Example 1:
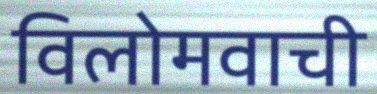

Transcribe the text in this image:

विलोमवाची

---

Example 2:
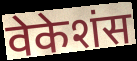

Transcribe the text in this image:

वेकेशंस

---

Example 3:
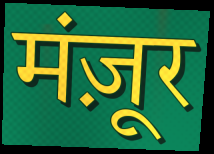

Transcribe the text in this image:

मंज़ूर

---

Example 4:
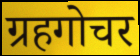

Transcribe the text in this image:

ग्रहगोचर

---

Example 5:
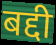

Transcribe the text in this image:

बद्दी